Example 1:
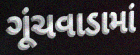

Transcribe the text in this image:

ગૂંચવાડામાં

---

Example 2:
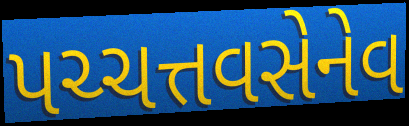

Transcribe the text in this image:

પચ્ચત્તવસેનેવ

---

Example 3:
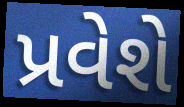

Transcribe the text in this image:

પ્રવેશે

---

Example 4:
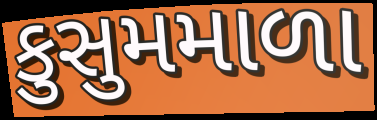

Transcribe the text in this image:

કુસુમમાળા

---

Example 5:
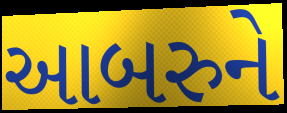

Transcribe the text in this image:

આબરુને